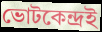
ভোটকেন্দ্রই